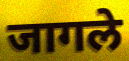
जागले